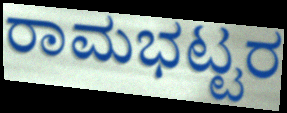
ರಾಮಭಟ್ಟರ